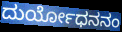
ದುರ್ಯೋಧನನಂ